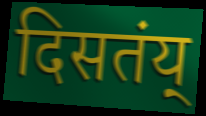
दिसतंय्